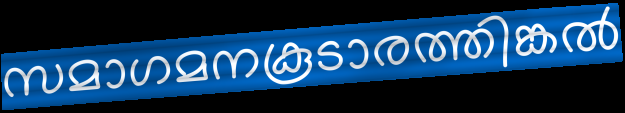
സമാഗമനകൂടാരത്തിങ്കൽ